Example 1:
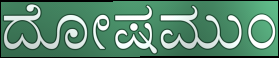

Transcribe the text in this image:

ದೋಷಮುಂ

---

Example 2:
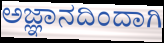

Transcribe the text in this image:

ಅಜ್ಞಾನದಿಂದಾಗಿ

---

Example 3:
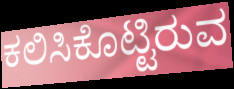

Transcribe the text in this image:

ಕಲಿಸಿಕೊಟ್ಟಿರುವ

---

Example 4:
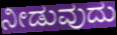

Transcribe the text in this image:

ನೀಡುವುದು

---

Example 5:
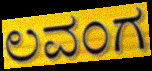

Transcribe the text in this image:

ಲವಂಗ